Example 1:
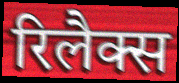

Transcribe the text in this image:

रिलैक्स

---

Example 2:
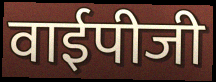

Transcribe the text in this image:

वाईपीजी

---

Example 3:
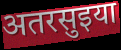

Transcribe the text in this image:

अतरसुइया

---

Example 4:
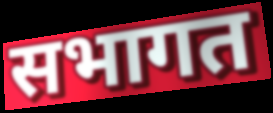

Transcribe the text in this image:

सभागत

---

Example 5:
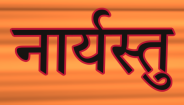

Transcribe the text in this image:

नार्यस्तु